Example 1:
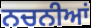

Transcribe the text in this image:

ਨਚਨੀਆਂ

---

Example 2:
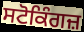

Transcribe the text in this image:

ਸਟੋਕਿੰਗਜ਼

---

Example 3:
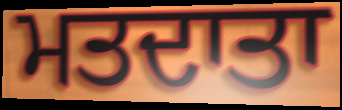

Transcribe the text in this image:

ਮਤਦਾਤਾ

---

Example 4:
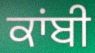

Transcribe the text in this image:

ਕਾਂਬੀ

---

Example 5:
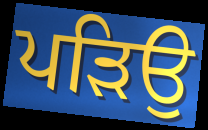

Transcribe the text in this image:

ਪੜਿਉ